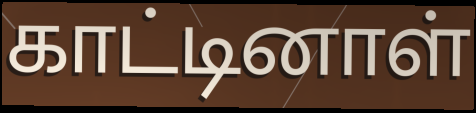
காட்டினாள்